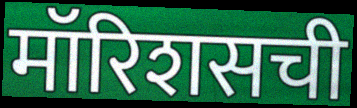
मॉरिशसची